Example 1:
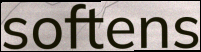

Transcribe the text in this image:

softens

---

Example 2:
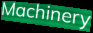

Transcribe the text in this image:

Machinery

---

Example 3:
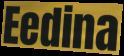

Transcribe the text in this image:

Eedina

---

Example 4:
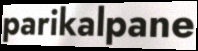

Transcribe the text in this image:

parikalpane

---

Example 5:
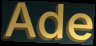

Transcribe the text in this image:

Ade